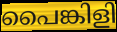
പൈങ്കിളി